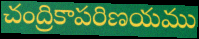
చంద్రికాపరిణయము